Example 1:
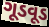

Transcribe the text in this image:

ગૂડવૂડ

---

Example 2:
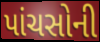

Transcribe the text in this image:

પાંચસોની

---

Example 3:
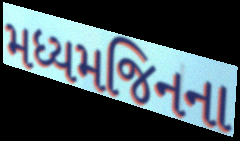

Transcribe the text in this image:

મધ્યમજિનના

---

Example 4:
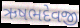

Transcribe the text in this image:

ઋષભદેવજી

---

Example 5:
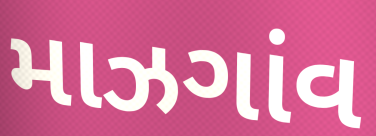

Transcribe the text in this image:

માઝગાંવ